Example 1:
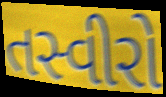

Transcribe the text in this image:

તસ્વીરો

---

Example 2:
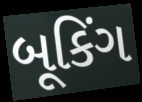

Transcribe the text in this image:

બૂકિંગ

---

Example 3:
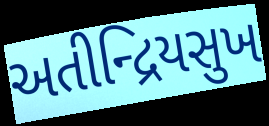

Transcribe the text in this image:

અતીન્દ્રિયસુખ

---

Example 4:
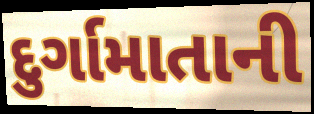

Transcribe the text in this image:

દુર્ગામાતાની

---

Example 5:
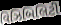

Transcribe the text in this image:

વિઝિબિલિટી